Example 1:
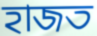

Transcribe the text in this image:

হাজত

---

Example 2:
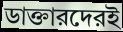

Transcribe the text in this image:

ডাক্তারদেরই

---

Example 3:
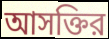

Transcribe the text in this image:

আসক্তির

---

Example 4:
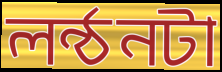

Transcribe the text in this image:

লন্ঠনটা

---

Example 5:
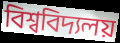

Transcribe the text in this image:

বিশ্ববিদ্যলয়